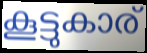
കൂട്ടുകാര്